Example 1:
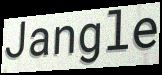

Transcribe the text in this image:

Jangle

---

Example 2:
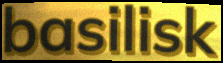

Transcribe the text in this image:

basilisk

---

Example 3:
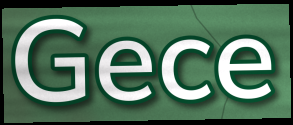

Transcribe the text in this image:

Gece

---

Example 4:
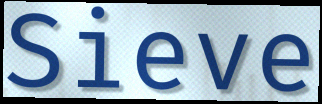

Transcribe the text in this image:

Sieve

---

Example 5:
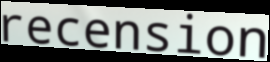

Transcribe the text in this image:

recension